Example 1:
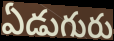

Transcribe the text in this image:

ఏడుగురు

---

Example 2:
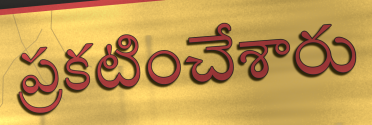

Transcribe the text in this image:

ప్రకటించేశారు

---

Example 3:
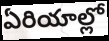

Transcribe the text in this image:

ఏరియాల్లో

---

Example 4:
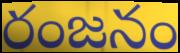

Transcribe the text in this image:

రంజనం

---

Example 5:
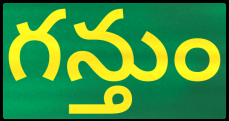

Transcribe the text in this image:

గన్తుం